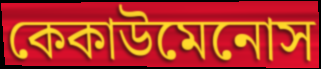
কেকাউমেনোস